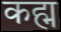
कह्म